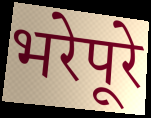
भरेपूरे